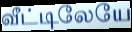
வீட்டிலேயே